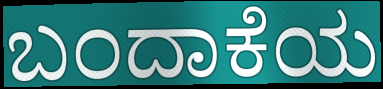
ಬಂದಾಕೆಯ